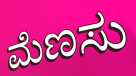
ಮೆಣಸು